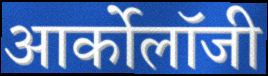
आर्कोलॉजी